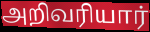
அறிவரியார்